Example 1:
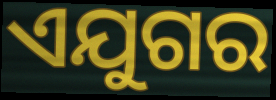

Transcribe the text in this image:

ଏଯୁଗର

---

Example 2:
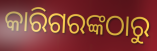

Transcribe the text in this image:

କାରିଗରଙ୍କଠାରୁ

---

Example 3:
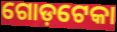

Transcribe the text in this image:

ଗୋଡ଼ଟେକା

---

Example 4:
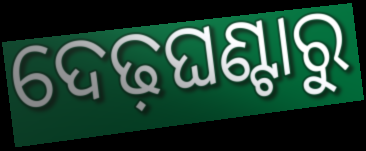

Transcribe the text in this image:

ଦେଢ଼ଘଣ୍ଟାରୁ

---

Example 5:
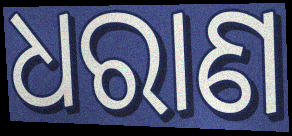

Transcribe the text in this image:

ଧରାଣ